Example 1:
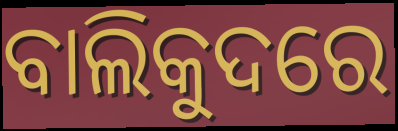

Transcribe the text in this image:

ବାଲିକୁଦରେ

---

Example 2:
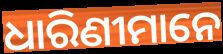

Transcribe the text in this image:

ଧାରିଣୀମାନେ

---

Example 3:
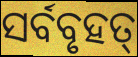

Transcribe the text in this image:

ସର୍ବବୃହତ୍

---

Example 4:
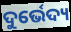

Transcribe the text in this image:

ଦୁର୍ଭେଦ୍ୟ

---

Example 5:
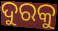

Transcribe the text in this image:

ଦୁରକୁ